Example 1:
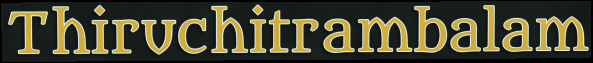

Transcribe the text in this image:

Thiruchitrambalam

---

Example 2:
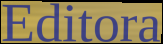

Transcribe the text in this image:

Editora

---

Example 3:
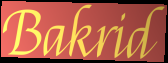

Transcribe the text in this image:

Bakrid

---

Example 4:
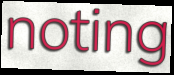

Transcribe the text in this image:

noting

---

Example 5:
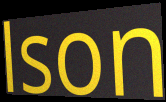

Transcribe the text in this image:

Ison